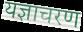
यज्ञाचरण